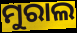
ମୁରାଲ